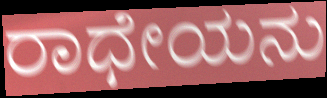
ರಾಧೇಯನು